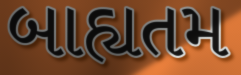
બાહ્યતમ